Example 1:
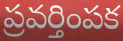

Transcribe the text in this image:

ప్రవర్తింపక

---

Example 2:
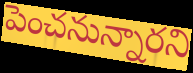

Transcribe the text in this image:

పెంచనున్నారని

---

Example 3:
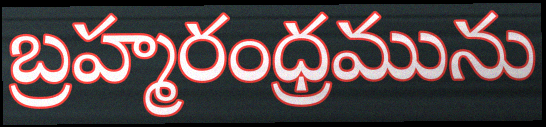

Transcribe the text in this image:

బ్రహ్మరంధ్రమును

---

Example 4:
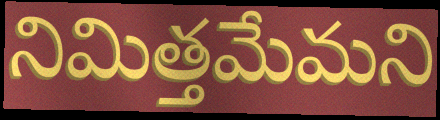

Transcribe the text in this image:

నిమిత్తమేమని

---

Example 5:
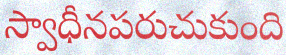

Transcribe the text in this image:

స్వాధీనపరుచుకుంది